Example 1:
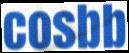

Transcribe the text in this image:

cosbb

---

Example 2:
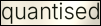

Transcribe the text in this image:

quantised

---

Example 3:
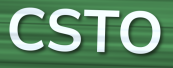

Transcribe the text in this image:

CSTO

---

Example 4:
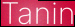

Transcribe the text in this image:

Tanin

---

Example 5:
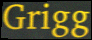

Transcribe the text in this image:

Grigg